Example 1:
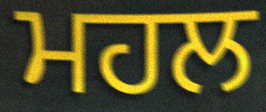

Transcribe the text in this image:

ਮਹਲ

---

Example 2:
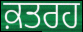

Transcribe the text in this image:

ਕ਼ਤਰਹ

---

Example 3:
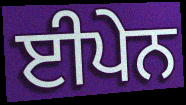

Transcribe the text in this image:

ਈਪੇਨ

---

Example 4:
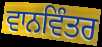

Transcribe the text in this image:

ਵਾਨਵਿੰਤਰ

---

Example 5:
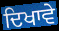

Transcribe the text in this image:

ਦਿਖਾਵੇ